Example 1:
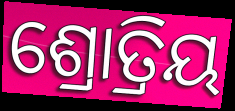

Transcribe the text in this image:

ଶ୍ରୋତ୍ରିୟ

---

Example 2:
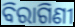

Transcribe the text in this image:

ବିରାଗିଣୀ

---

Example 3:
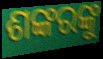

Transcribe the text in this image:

ଶଙ୍କରଙ୍କୁ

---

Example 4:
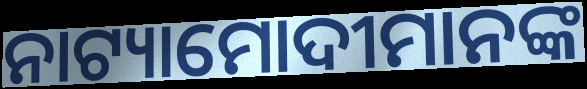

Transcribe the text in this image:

ନାଟ୍ୟାମୋଦୀମାନଙ୍କ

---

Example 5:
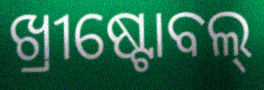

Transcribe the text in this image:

ଖ୍ରୀଷ୍ଟୋବଲ୍